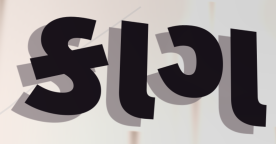
કાગ